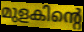
മുളകിന്റെ